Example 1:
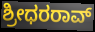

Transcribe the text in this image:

ಶ್ರೀಧರರಾವ್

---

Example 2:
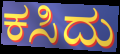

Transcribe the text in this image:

ಕಸಿದು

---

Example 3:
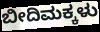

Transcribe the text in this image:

ಬೀದಿಮಕ್ಕಳು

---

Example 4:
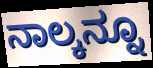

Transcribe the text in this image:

ನಾಲ್ಕನ್ನೂ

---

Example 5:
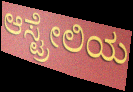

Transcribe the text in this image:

ಆಸ್ಟ್ರೇಲಿಯ